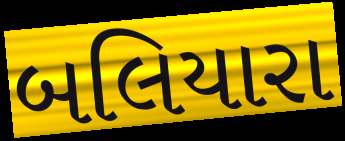
બલિયારા